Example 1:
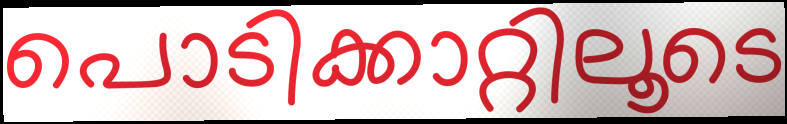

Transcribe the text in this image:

പൊടിക്കാറ്റിലൂടെ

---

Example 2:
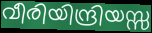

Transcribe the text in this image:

വീരിയിന്ദ്രിയസ്സ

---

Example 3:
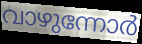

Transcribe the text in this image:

വാഴുന്നോർ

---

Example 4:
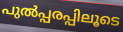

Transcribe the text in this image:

പുൽപ്പരപ്പിലൂടെ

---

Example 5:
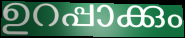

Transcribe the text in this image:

ഉറപ്പാക്കും